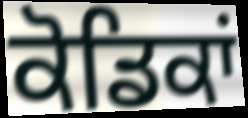
ਕੋਡਿਕਾਂ